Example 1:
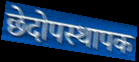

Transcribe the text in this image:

छेदोपस्थापक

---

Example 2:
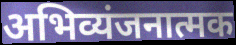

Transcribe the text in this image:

अभिव्यंजनात्मक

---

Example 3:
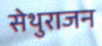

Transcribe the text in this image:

सेथुराजन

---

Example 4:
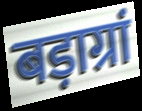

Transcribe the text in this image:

बड़ाग्रां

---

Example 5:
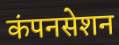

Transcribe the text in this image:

कंपनसेशन